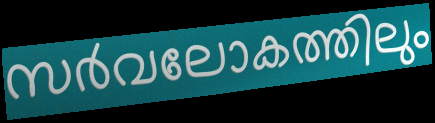
സർവലോകത്തിലും